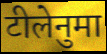
टीलेनुमा